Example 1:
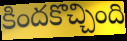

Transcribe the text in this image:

కిందకొచ్చింది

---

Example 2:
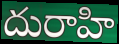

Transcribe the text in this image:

దురాహి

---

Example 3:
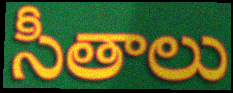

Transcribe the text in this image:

సీతాలు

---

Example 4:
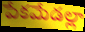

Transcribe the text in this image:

పేకమేడల్లా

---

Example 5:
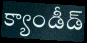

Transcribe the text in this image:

క్యాండీడ్